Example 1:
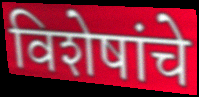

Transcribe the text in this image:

विशेषांचे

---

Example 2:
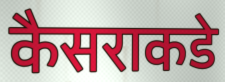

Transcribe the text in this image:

कैसराकडे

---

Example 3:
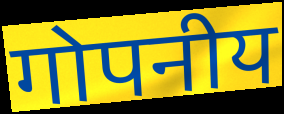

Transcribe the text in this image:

गोपनीय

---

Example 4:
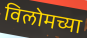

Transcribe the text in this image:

विलोमच्या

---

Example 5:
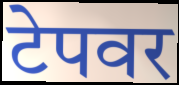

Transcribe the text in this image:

टेपवर